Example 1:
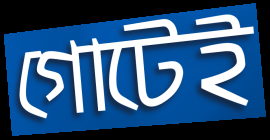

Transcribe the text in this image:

গোটেই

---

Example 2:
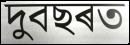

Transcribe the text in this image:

দুবছৰত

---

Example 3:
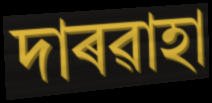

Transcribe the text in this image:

দাৰৱাহা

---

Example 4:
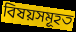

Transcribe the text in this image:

বিষয়সমূহত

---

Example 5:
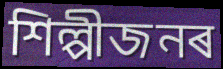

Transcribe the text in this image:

শিল্পীজনৰ